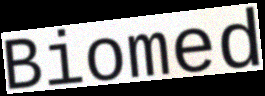
Biomed